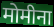
मोमीना